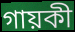
গায়কী